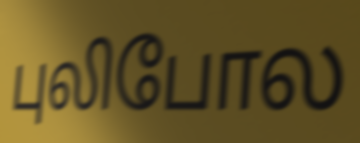
புலிபோல